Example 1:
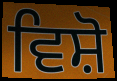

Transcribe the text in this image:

ਵਿਸ਼ੋ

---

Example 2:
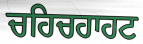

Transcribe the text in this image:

ਚਹਿਚਹਾਹਟ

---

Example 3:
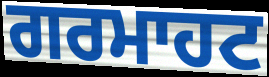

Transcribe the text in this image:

ਗਰਮਾਹਟ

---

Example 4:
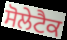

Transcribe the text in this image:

ਸੋਲੇਟੈਕ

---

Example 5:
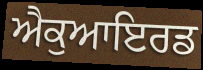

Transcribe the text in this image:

ਐਕੁਆਇਰਡ